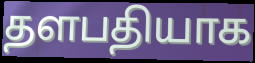
தளபதியாக